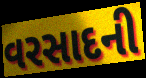
વરસાદની